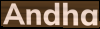
Andha